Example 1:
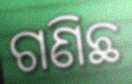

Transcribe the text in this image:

ଗଣିଛ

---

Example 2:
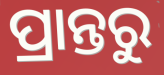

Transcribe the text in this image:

ପ୍ରାନ୍ତରୁ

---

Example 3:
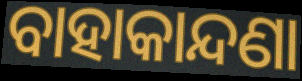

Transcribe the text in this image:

ବାହାକାନ୍ଦଣା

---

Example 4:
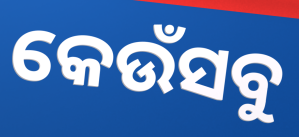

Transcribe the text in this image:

କେଉଁସବୁ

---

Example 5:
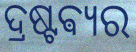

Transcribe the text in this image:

ଦ୍ରଷ୍ଟଵ୍ୟର